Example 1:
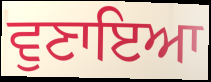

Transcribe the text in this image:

ਵੁਣਾਇਆ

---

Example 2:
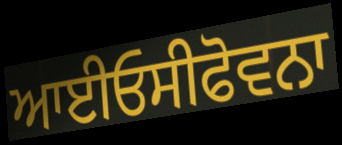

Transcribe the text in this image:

ਆਈਓਸੀਫੋਵਨਾ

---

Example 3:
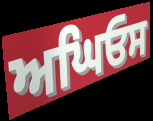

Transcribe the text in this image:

ਅਘਿਓਸ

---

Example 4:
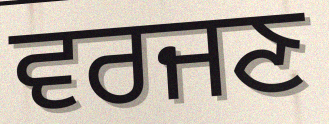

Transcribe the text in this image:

ਵਰਜਣ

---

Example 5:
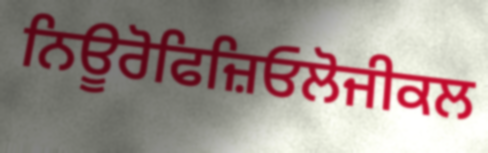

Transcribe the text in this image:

ਨਿਊਰੋਫਿਜ਼ਿਓਲੋਜੀਕਲ